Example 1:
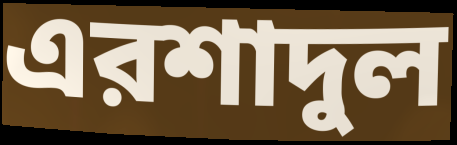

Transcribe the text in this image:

এরশাদুল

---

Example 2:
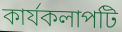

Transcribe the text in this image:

কার্যকলাপটি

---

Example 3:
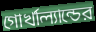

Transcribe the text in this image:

গোর্খাল্যান্ডের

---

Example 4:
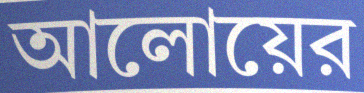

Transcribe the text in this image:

আলোয়ের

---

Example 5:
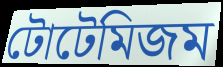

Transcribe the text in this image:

টোটেমিজম